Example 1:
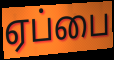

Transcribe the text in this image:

ஏப்பை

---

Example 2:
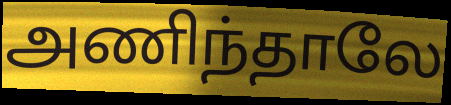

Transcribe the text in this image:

அணிந்தாலே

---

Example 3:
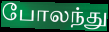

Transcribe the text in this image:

போலந்து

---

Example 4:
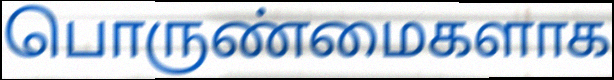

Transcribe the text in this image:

பொருண்மைகளாக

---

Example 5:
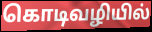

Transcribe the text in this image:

கொடிவழியில்